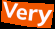
Very